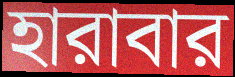
হারাবার